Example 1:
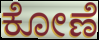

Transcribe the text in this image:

ಕೋಣೆ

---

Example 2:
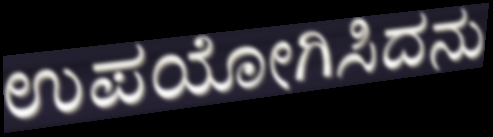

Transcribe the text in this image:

ಉಪಯೋಗಿಸಿದನು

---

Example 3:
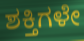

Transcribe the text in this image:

ಶಕ್ತಿಗಳೇ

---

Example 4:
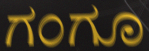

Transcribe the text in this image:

ಗಂಗೂ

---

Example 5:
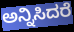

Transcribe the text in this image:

ಅನ್ನಿಸಿದರೆ